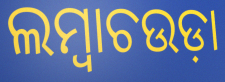
ଲମ୍ୱାଚଉଡ଼ା